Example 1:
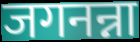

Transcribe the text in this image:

जगनन्ना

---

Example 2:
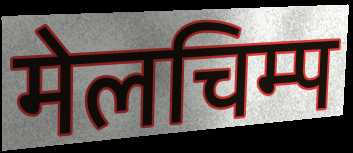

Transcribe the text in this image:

मेलचिम्प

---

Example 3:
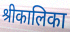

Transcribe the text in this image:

श्रीकालिका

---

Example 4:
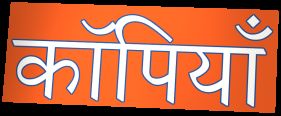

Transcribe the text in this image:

कॉपियाँ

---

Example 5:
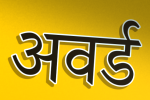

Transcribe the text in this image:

अवर्ड